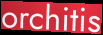
orchitis